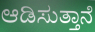
ಆಡಿಸುತ್ತಾನೆ